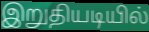
இறுதியடியில்